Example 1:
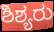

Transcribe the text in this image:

ಶಿಶ್ಯರು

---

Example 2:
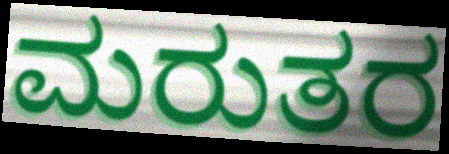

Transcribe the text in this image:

ಮರುತರ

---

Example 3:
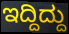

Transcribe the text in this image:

ಇದ್ದಿದ್ದು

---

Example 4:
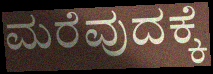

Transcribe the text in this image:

ಮರೆವುದಕ್ಕೆ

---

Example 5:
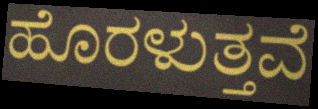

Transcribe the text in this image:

ಹೊರಳುತ್ತವೆ